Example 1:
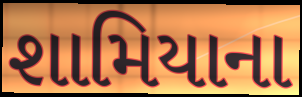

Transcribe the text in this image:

શામિયાના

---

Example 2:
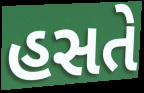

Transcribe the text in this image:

હસતે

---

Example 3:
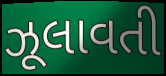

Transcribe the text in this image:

ઝૂલાવતી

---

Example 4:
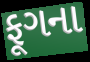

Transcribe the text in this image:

ફૂગના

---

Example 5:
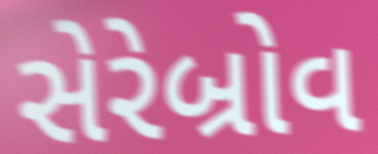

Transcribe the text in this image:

સેરેબ્રોવ